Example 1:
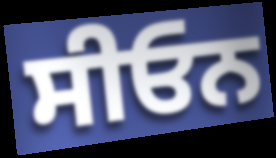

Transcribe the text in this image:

ਸੀਓਨ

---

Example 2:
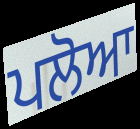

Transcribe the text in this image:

ਪਲੋਆ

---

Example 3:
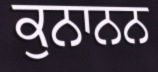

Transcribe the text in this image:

ਕੁਨਾਨਨ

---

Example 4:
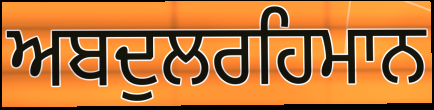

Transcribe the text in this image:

ਅਬਦੁਲਰਹਿਮਾਨ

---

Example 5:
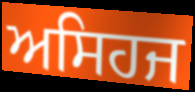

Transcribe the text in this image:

ਅਸਿਹਜ